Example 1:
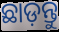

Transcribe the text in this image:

ଛାଡ଼ନ୍ତୁ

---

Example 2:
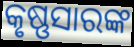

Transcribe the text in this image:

କୃଷ୍ଣସାରଙ୍କ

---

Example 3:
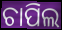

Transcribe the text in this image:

ଚାପିଲ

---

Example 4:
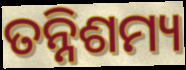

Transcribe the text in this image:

ତନ୍ନିଶମ୍ୟ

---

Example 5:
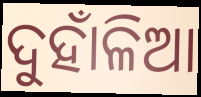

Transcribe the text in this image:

ଦୁହାଁଳିଆ